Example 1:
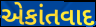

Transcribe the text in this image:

એકાંતવાદ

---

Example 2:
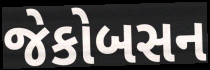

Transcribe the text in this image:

જેકોબસન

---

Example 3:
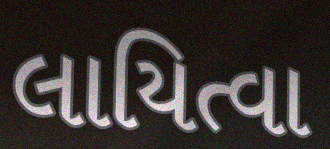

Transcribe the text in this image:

લાયિત્વા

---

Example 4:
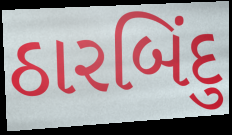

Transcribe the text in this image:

ઠારબિંદુ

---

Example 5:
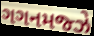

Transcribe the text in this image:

ગગનમજ્ઝે